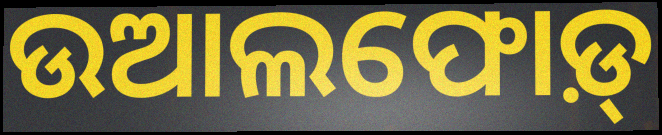
ଉଆଲଫୋଡ଼୍